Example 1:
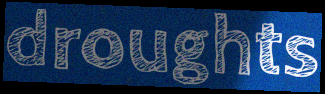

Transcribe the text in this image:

droughts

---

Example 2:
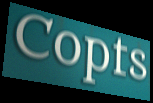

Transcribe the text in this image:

Copts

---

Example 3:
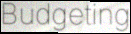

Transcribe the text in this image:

Budgeting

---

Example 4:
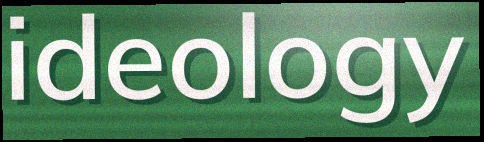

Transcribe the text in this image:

ideology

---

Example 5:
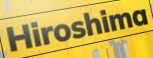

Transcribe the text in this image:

Hiroshima